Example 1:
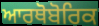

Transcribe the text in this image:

ਆਰਥੋਬੋਰਿਕ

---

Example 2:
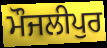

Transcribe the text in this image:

ਮੌਜਲੀਪੁਰ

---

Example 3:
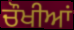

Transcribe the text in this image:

ਚੌਖੀਆਂ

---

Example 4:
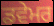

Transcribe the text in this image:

ਡਵੇਮਰ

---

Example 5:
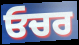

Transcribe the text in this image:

ਓਚਰ